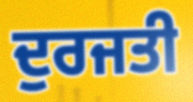
ਦੁਰਜਤੀ